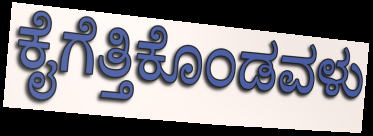
ಕೈಗೆತ್ತಿಕೊಂಡವಳು